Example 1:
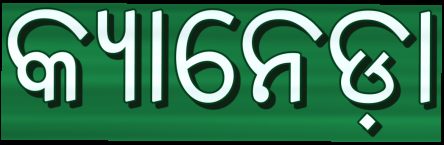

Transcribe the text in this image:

କ୍ୟାନେଡ଼ା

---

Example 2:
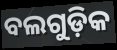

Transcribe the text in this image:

ବଲଗୁଡ଼ିକ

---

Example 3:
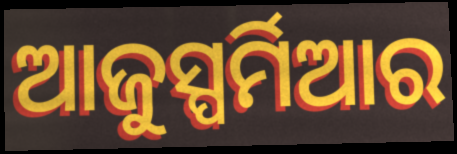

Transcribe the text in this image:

ଆଜୁସ୍ପର୍ମିଆର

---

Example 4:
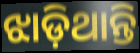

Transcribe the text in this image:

ଝାଡ଼ିଥାନ୍ତି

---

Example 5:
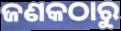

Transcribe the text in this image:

ଜଣକଠାରୁ